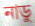
নাডু